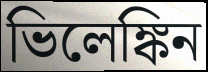
ভিলেঙ্কিন